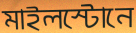
মাইলস্টোনে